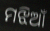
ମଝିଆଁ